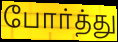
போர்த்து